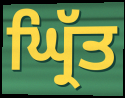
ਘ੍ਰਿੱਤ